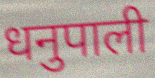
धनुपाली